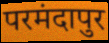
परमंदापुर